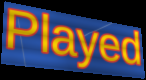
Played